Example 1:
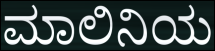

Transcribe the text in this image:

ಮಾಲಿನಿಯ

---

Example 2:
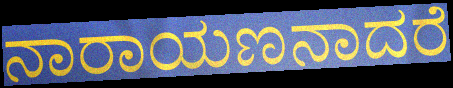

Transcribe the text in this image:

ನಾರಾಯಣನಾದರೆ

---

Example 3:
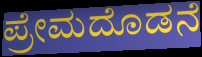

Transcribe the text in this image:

ಪ್ರೇಮದೊಡನೆ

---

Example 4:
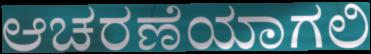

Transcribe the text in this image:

ಆಚರಣೆಯಾಗಲಿ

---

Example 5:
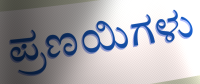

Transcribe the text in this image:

ಪ್ರಣಯಿಗಳು